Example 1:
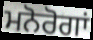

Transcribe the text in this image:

ਮਨੋਰੋਗਾਂ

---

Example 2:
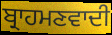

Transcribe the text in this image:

ਬ੍ਰਾਹਮਣਵਾਦੀ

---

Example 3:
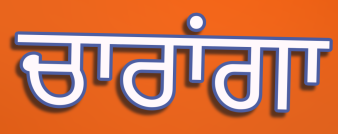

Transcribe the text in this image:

ਚਾਰਾਂਗਾ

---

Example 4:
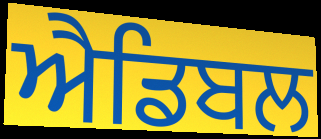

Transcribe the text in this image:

ਐਡਿਬਲ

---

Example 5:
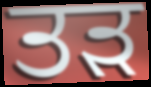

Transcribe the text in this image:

ਤੜ